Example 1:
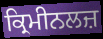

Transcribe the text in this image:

ਕ੍ਰਿਮੀਨਲਜ਼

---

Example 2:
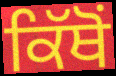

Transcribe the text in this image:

ਕਿੱਥੋੰ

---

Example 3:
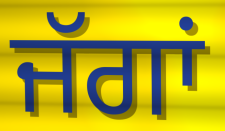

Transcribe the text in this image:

ਜੱਗਾਂ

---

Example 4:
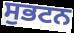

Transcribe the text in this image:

ਸੁਭਟਨ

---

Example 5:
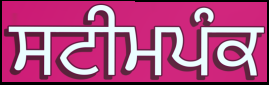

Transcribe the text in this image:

ਸਟੀਮਪੰਕ